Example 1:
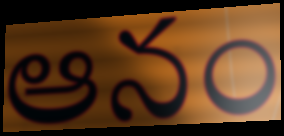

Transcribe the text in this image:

ఆనం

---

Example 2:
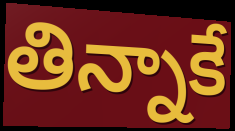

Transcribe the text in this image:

తిన్నాకే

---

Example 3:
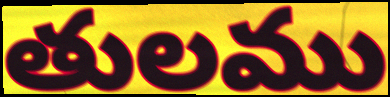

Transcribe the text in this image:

తులము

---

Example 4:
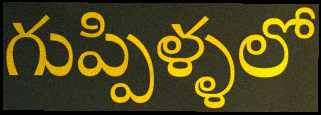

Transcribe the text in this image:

గుప్పిళ్ళలో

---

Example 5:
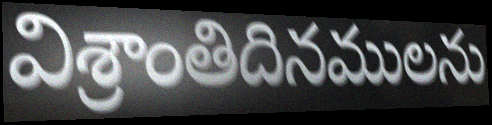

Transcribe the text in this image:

విశ్రాంతిదినములను